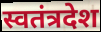
स्वतंत्रदेश